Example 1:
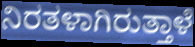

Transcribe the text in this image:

ನಿರತಳಾಗಿರುತ್ತಾಳೆ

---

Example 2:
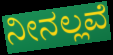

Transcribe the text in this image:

ನೀನಲ್ಲವೆ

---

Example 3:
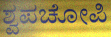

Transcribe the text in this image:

ಶ್ವಪಚೋಪಿ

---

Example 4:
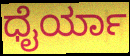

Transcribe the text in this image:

ಧೈರ್ಯಾ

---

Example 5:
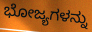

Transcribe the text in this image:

ಭೋಜ್ಯಗಳನ್ನು